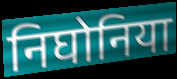
निघोनिया